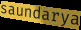
saundarya